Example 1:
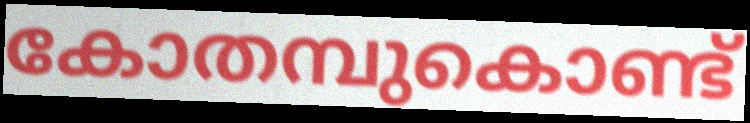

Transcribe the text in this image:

കോതമ്പുകൊണ്ട്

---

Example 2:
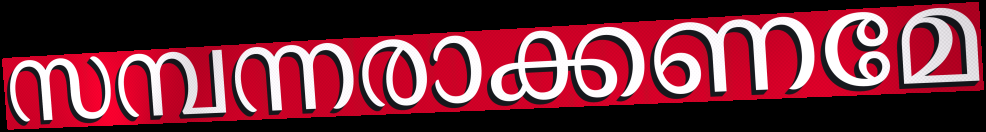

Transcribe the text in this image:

സമ്പന്നരാക്കണമേ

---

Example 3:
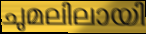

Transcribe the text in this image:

ചുമലിലായി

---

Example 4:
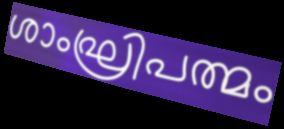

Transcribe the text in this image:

ശാംഘ്രിപത്മം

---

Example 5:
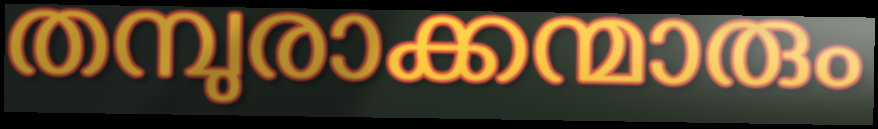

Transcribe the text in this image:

തമ്പുരാക്കന്മാരും